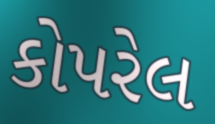
કોપરેલ